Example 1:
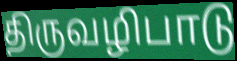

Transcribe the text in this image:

திருவழிபாடு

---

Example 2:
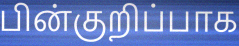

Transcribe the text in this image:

பின்குறிப்பாக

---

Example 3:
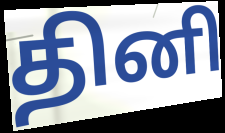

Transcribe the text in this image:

தினி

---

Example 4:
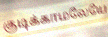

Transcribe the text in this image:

குடிக்காமலேயே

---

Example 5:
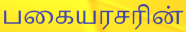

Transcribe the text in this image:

பகையரசரின்